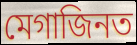
মেগাজিনত